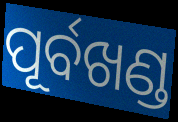
ପୂର୍ବଖଣ୍ଡ